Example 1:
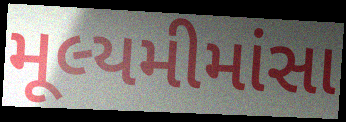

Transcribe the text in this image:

મૂલ્યમીમાંસા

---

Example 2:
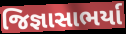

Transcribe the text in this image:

જિજ્ઞાસાભર્યા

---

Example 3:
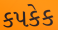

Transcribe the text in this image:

કપકેક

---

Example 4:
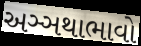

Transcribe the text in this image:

અઞ્ઞથાભાવો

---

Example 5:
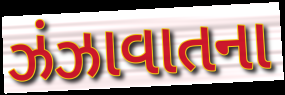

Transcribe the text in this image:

ઝંઝાવાતના